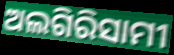
ଅଲଗିରିସାମୀ